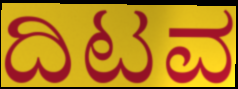
ದಿಟವ